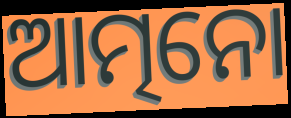
ଆତ୍ମନୋ